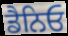
ਡੈਨਿਓ